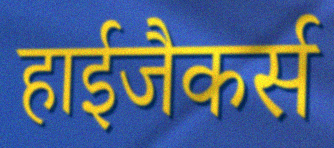
हाईजैकर्स